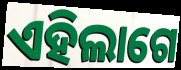
ଏହିଲାଗେ